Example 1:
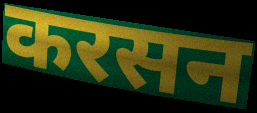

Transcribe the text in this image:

करसन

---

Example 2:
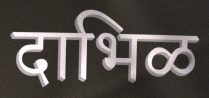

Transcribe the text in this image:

दाभिळ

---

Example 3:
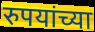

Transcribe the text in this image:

रुपयांच्या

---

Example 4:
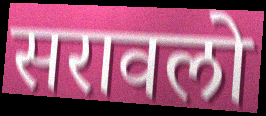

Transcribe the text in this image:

सरावलो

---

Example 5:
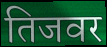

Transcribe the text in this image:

तिजवर